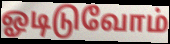
ஓடிடுவோம்